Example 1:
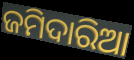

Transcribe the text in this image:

ଜମିଦାରିଆ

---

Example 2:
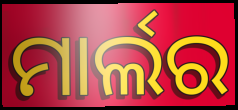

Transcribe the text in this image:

ମାର୍ଲର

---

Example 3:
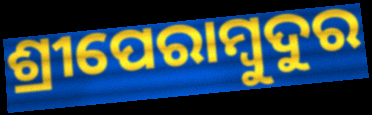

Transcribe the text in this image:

ଶ୍ରୀପେରାମ୍ବୁଦୁର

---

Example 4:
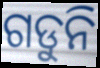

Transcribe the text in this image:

ଗଡୁନି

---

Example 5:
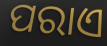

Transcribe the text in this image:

ପରାଏ